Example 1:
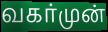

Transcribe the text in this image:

வகர்முன்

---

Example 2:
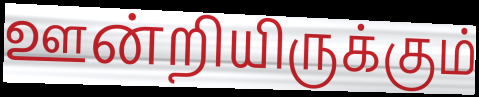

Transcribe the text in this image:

ஊன்றியிருக்கும்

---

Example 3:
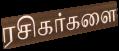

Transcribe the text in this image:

ரசிகர்களை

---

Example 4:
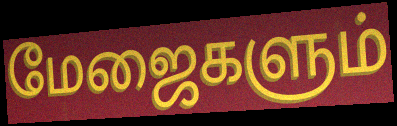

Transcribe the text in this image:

மேஜைகளும்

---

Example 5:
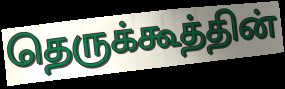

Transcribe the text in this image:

தெருக்கூத்தின்